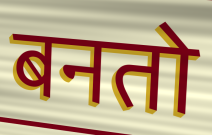
बनतो